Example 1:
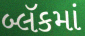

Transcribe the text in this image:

બ્લૅકમાં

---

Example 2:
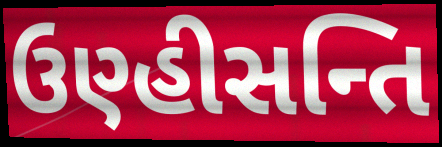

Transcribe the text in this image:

ઉણ્હીસન્તિ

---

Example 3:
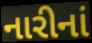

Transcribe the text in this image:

નારીનાં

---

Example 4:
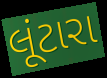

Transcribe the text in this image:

લૂંટારા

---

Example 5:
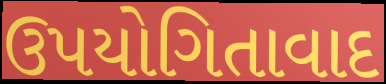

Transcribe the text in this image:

ઉપયોગિતાવાદ